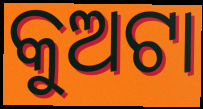
କୁଅଟା